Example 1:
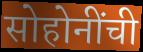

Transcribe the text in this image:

सोहोनींची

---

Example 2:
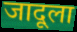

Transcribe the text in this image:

जादूला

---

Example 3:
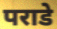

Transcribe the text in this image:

पराडे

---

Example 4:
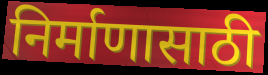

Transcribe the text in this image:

निर्माणासाठी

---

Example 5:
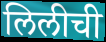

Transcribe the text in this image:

लिलीची